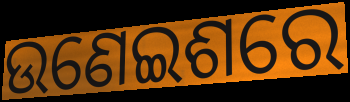
ଉଣେଇଶରେ